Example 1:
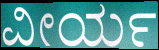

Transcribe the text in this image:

ವೀರ್ಯ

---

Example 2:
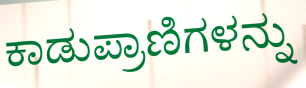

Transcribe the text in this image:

ಕಾಡುಪ್ರಾಣಿಗಳನ್ನು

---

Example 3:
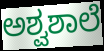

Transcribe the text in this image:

ಅಶ್ವಶಾಲೆ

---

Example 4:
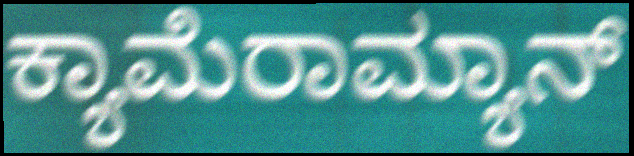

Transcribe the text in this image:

ಕ್ಯಾಮೆರಾಮ್ಯಾನ್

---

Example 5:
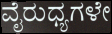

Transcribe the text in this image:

ವೈರುಧ್ಯಗಳೇ